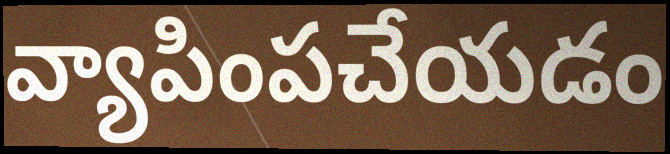
వ్యాపింపచేయడం